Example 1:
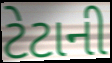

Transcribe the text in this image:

ટેટાની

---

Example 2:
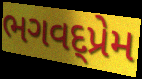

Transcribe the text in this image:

ભગવદ્પ્રેમ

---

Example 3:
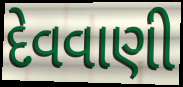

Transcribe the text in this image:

દેવવાણી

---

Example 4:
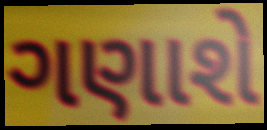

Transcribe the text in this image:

ગણાશે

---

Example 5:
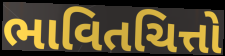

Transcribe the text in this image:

ભાવિતચિત્તો